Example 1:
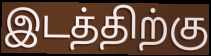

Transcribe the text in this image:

இடத்திற்கு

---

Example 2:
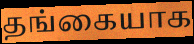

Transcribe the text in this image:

தங்கையாக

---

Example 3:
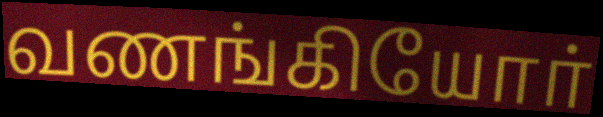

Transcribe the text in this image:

வணங்கியோர்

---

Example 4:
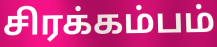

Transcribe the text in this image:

சிரக்கம்பம்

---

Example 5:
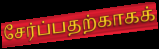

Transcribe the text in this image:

சேர்ப்பதற்காகக்